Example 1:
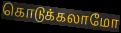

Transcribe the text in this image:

கொடுக்கலாமோ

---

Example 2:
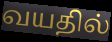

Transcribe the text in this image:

வயதில்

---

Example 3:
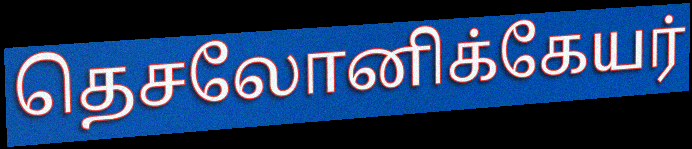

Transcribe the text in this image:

தெசலோனிக்கேயர்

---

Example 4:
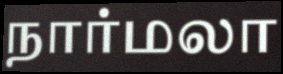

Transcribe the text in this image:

நார்மலா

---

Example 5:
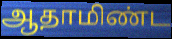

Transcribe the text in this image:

ஆதாமிண்ட